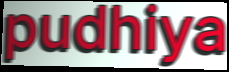
pudhiya